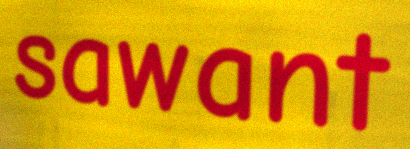
sawant